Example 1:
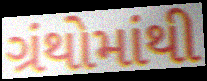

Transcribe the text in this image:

ગ્રંથોમાંથી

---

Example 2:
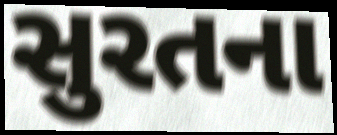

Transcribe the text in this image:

સુરતના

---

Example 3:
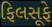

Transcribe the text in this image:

ફિલસૂફે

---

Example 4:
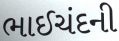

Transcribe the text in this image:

ભાઈચંદની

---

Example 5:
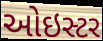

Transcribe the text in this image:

ઓઇસ્ટર